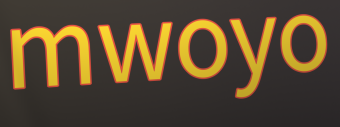
mwoyo